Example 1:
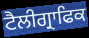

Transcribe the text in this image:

ਟੈਲੀਗ੍ਰਾਫਿਕ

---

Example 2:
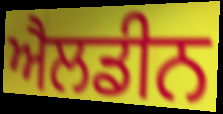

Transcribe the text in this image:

ਐਲਡੀਨ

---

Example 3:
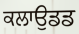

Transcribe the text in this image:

ਕਲਾਉਡਡ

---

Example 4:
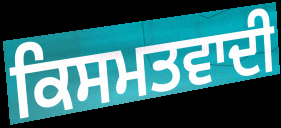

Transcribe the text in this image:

ਕਿਸਮਤਵਾਦੀ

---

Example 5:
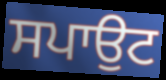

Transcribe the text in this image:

ਸਪਾਉਟ